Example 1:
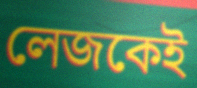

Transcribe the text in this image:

লেজকেই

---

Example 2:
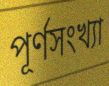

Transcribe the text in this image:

পূর্ণসংখ্যা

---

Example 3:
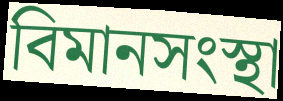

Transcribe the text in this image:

বিমানসংস্থা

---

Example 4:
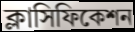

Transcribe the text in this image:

ক্লাসিফিকেশন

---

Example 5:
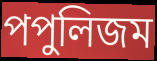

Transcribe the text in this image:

পপুলিজম